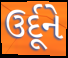
ઉર્દૂને